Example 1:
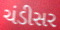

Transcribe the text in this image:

ચંડીસર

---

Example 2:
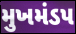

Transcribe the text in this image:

મુખમંડપ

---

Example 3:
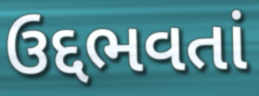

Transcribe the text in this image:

ઉદ્દભવતાં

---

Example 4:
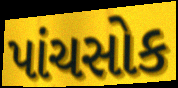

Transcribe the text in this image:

પાંચસોક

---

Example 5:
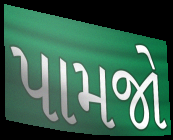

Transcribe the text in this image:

પામજો